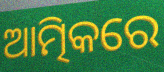
ଆତ୍ମିକରେ